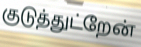
குடுத்துட்றேன்